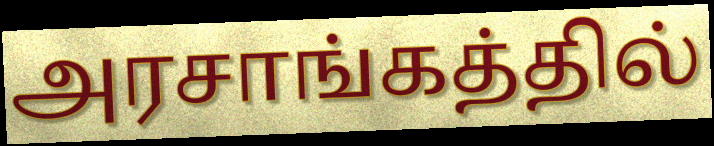
அரசாங்கத்தில்